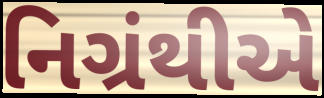
નિગ્રંથીએ